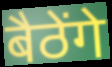
बैठेंगे